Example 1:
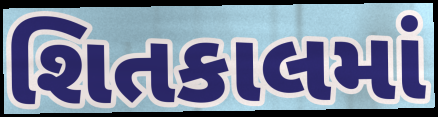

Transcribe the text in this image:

શિતકાલમાં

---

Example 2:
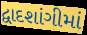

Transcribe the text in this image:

દ્વાદશાંગીમાં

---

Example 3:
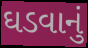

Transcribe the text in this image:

ઘડવાનું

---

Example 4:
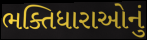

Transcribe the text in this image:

ભક્તિધારાઓનું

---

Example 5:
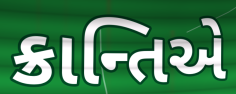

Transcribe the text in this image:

ક્રાન્તિએ